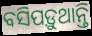
ବସିପଡ଼ୁଥାନ୍ତି